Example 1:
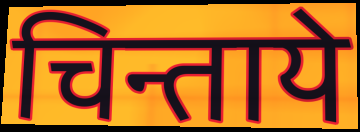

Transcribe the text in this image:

चिन्ताये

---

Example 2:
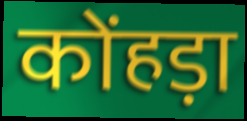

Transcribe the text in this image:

कोंहड़ा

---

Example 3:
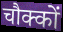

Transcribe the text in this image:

चौक्कों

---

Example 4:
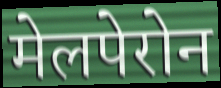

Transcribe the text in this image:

मेलपेरोन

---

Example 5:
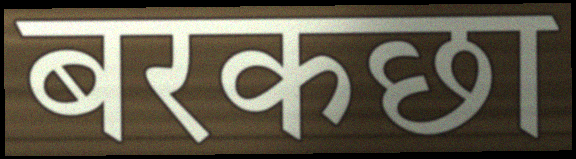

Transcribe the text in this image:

बरकछा